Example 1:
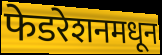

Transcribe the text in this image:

फेडरेशनमधून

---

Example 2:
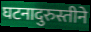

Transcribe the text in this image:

घटनादुरुस्तीने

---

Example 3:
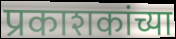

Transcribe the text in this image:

प्रकाशकांच्या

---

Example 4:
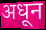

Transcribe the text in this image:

अधून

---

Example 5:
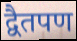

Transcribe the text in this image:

द्वैतपण